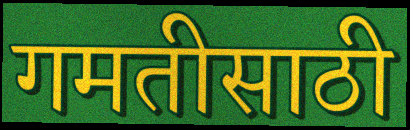
गमतीसाठी